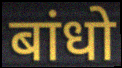
बांधो